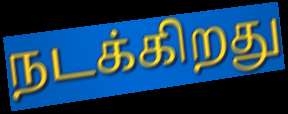
நடக்கிறது